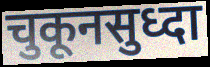
चुकूनसुध्दा